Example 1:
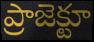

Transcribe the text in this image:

ప్రాజెక్టూ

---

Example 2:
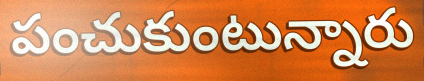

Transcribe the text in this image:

పంచుకుంటున్నారు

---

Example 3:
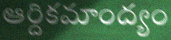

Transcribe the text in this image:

ఆర్దికమాంద్యం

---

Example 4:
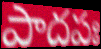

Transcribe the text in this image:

పాదపః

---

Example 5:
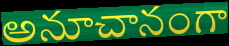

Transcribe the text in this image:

అనూచానంగా